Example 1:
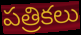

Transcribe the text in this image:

పత్రికలు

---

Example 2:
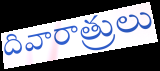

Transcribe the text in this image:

దివారాత్రులు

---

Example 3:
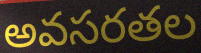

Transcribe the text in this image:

అవసరతల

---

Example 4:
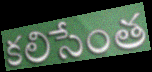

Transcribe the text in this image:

కలిసేంత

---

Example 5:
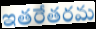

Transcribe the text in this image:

ఇతరేతరమ